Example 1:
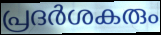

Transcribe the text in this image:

പ്രദർശകരും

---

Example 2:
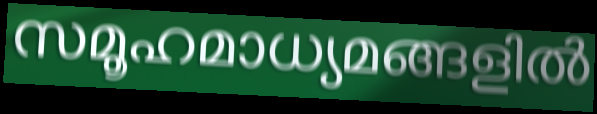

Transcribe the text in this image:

സമൂഹമാധ്യമങ്ങളിൽ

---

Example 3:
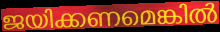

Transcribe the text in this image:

ജയിക്കണമെങ്കിൽ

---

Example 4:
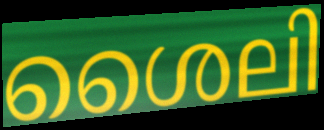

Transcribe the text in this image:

ശൈലി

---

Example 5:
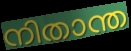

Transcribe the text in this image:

നിതാന്ത